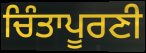
ਚਿੰਤਾਪੂਰਣੀ